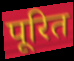
पूरित